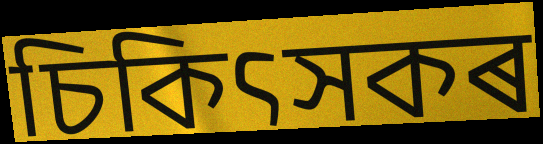
চিকিৎসকৰ